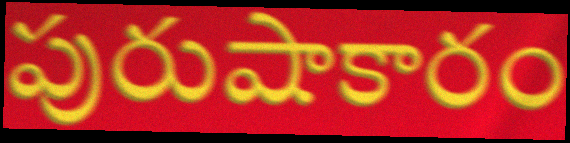
పురుషాకారం